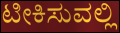
ಟೀಕಿಸುವಲ್ಲಿ